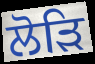
ਲੋੜਿ